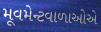
મૂવમેન્ટવાળાઓએ